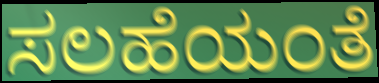
ಸಲಹೆಯಂತೆ